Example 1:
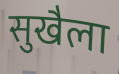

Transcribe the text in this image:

सुखैला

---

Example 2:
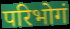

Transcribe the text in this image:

परिभोगं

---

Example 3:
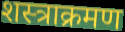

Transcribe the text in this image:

शस्त्राक्रमण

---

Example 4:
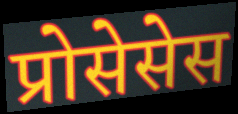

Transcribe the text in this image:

प्रोसेसेस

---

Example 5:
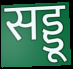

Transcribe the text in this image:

सड्डू